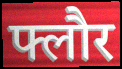
फ्लौर